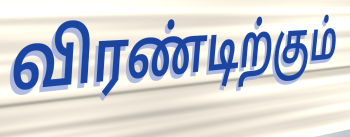
விரண்டிற்கும்